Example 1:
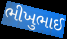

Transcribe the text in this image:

ભીખુભાઈ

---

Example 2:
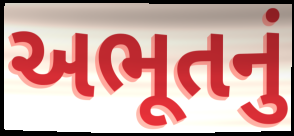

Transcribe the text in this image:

અભૂતનું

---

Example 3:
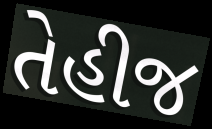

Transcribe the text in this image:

તેહીજ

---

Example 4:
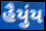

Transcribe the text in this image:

હૈયુંય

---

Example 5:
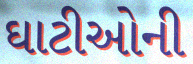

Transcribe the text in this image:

ઘાટીઓની